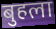
बुहला